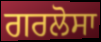
ਗਰਲੋਸਾ